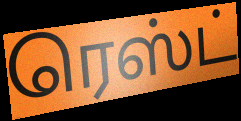
ரெஸ்ட்